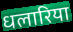
धलारिया